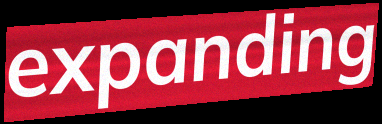
expanding